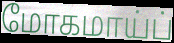
மோகமாய்ப்